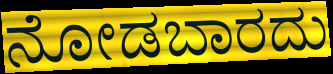
ನೋಡಬಾರದು